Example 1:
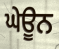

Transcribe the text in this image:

ਘੇਊਨ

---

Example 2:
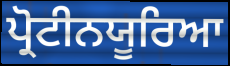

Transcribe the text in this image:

ਪ੍ਰੋਟੀਨਯੂਰਿਆ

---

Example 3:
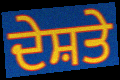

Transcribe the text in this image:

ਦੇਸ਼ਤੇ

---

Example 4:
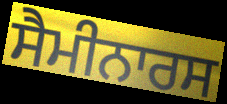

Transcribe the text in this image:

ਸੈਮੀਨਾਰਸ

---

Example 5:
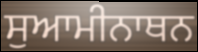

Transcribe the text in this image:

ਸੁਆਮੀਨਾਥਨ